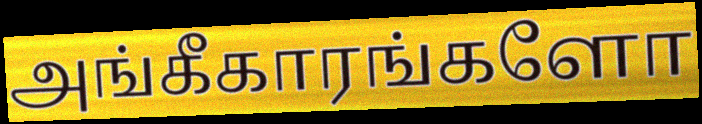
அங்கீகாரங்களோ